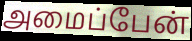
அமைப்பேன்